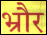
भ्रौर